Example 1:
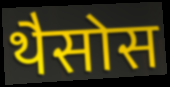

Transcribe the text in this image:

थैसोस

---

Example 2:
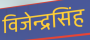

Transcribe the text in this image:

विजेन्द्रसिंह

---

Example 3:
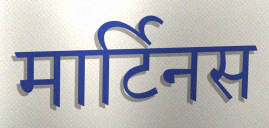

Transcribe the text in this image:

मार्टिनस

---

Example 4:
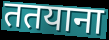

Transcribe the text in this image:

ततयाना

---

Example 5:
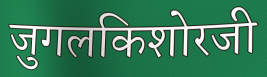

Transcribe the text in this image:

जुगलकिशोरजी